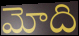
మోది